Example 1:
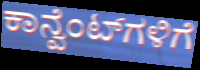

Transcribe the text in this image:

ಕಾನ್ವೆಂಟ್‌ಗಳಿಗೆ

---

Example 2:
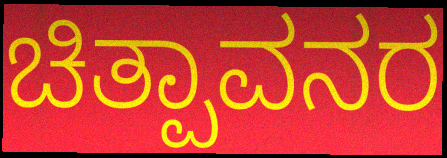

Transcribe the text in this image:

ಚಿತ್ಪಾವನರ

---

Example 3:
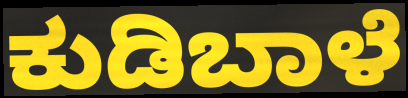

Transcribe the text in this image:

ಕುಡಿಬಾಳೆ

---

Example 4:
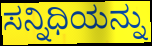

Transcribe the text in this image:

ಸನ್ನಿಧಿಯನ್ನು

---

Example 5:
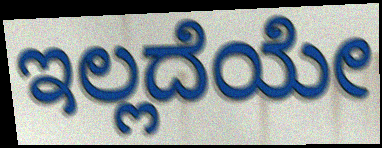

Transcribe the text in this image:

ಇಲ್ಲದೆಯೇ